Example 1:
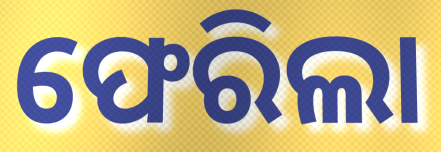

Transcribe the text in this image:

ଫେରିଲା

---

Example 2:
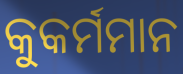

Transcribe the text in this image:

କୁକର୍ମମାନ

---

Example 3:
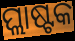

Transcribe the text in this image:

ପ୍ଲାଷ୍ଟକ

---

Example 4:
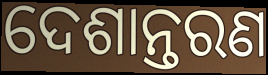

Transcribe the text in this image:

ଦେଶାନ୍ତରଣ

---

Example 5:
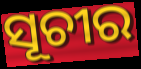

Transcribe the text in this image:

ସୂଚୀର